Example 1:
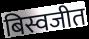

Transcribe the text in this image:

बिस्वजीत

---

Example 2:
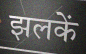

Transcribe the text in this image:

झलकें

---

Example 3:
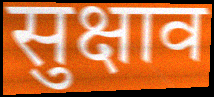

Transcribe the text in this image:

सुक्षाव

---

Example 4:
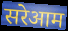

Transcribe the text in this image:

सरेआम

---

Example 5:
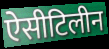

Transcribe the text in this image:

ऐसीटिलीन